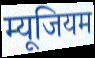
म्यूजियम